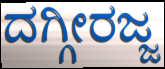
ದಗ್ಗೀರಜ್ಜ